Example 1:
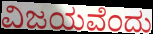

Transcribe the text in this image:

ವಿಜಯವೆಂದು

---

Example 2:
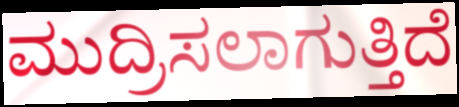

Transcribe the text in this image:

ಮುದ್ರಿಸಲಾಗುತ್ತಿದೆ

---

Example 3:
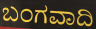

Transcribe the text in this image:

ಬಂಗವಾದಿ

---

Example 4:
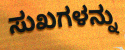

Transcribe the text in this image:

ಸುಖಗಳನ್ನು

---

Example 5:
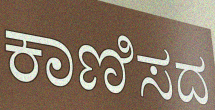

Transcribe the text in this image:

ಕಾಣಿಸದ